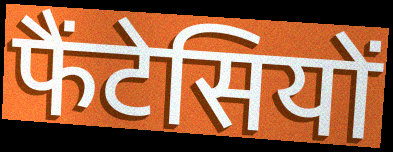
फैंटेसियों